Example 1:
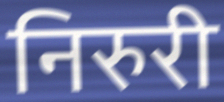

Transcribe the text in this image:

निरुरी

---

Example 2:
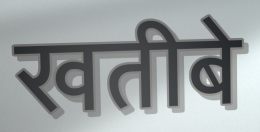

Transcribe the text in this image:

खतीबे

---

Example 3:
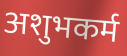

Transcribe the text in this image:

अशुभकर्म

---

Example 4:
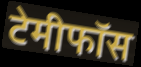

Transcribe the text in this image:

टेमीफॉस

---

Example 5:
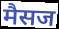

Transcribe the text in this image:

मैसज